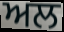
ਅਲ